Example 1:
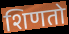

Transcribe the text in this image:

शिणतो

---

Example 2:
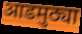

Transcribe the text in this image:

आडमुठ्या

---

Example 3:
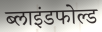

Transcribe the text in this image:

ब्लाइंडफोल्ड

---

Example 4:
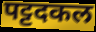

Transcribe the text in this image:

पट्टदकल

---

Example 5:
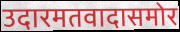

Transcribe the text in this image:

उदारमतवादासमोर